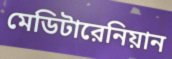
মেডিটারেনিয়ান